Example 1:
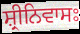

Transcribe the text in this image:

ਸ਼੍ਰੀਨਿਵਾਸਃ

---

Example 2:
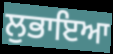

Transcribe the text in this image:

ਲੁਭਾਇਆ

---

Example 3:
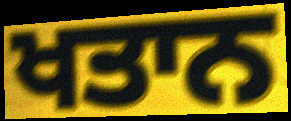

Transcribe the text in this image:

ਖਤਾਨ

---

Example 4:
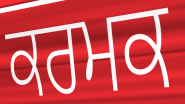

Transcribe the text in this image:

ਕਰਮਕ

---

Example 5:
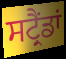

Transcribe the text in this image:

ਸਟ੍ਰੈਂਡਾਂ